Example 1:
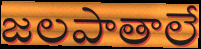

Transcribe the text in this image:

జలపాతాలే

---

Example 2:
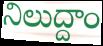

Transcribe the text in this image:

నిలుద్దాం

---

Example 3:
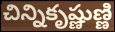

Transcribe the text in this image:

చిన్నికృష్ణుణ్ణి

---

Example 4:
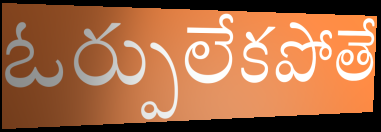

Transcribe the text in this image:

ఓర్పులేకపోతే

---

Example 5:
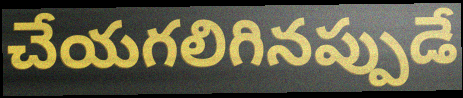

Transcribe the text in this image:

చేయగలిగినప్పుడే